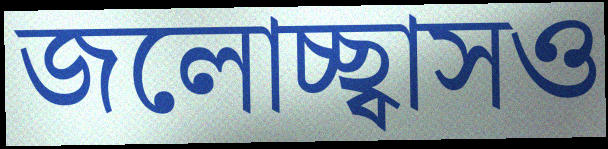
জলোচ্ছ্বাসও